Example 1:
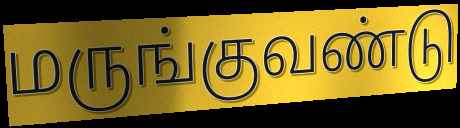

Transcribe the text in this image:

மருங்குவண்டு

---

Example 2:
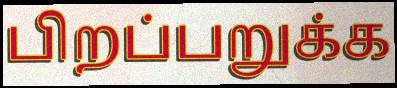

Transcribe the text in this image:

பிறப்பறுக்க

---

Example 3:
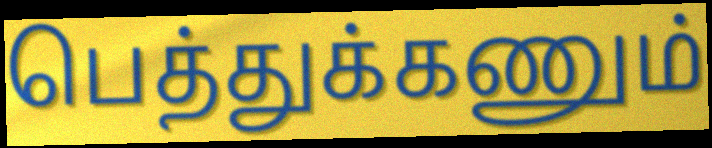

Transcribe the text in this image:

பெத்துக்கணும்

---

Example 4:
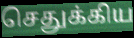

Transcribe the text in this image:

செதுக்கிய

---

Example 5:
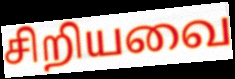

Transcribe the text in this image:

சிறியவை